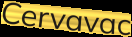
Cervavac